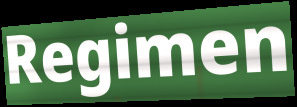
Regimen